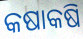
କଷାକଷି